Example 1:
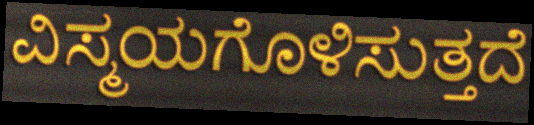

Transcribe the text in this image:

ವಿಸ್ಮಯಗೊಳಿಸುತ್ತದೆ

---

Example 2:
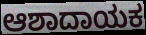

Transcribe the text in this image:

ಆಶಾದಾಯಕ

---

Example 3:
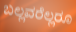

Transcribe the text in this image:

ಬಲ್ಲವರೆಲ್ಲರೂ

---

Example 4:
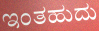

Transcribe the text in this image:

ಇಂತಹುದು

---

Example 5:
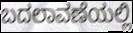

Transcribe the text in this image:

ಬದಲಾವಣೆಯಲ್ಲಿ